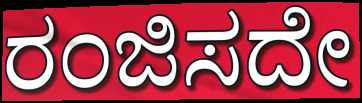
ರಂಜಿಸದೇ